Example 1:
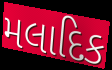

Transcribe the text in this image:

મલાદિક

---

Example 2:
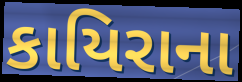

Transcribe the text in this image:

કાયિરાના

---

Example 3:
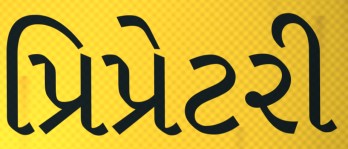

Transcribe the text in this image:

પ્રિપ્રેટરી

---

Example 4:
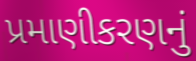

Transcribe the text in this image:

પ્રમાણીકરણનું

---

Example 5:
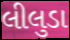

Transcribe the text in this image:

લીલુડા